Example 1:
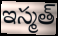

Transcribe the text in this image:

ఇస్మత్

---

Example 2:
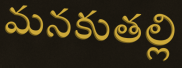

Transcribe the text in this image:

మనకుతల్లి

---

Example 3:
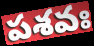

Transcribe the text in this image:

పశవః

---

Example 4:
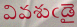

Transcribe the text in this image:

వివశుఁడై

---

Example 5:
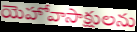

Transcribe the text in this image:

యెహోవాసాక్షులను